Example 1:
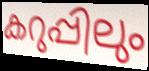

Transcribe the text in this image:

കറുപ്പിലും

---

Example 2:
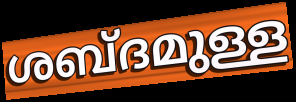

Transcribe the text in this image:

ശബ്ദമുള്ള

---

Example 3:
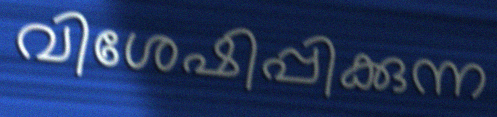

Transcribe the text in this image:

വിശേഷിപ്പിക്കുന്ന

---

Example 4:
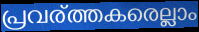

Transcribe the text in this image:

പ്രവര്ത്തകരെല്ലാം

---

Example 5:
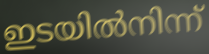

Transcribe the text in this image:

ഇടയിൽനിന്ന്